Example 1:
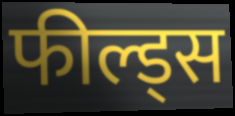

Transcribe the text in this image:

फील्ड्स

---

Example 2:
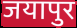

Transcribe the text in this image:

जयापुर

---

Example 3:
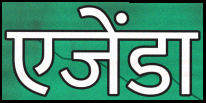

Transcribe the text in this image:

एजेंडा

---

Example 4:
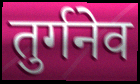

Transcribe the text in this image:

तुर्गनेव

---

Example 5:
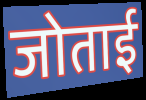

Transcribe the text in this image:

जोताई